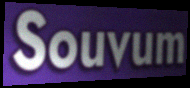
Souvum